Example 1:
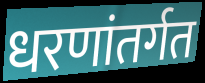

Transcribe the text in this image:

धरणांतर्गत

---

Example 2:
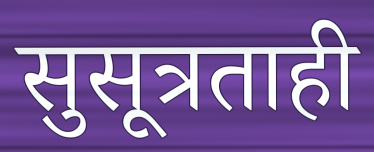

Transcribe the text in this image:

सुसूत्रताही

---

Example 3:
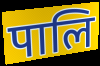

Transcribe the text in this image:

पालि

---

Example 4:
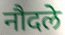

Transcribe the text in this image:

नौदले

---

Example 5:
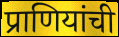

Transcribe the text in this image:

प्राणियांची